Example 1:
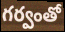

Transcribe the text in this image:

గర్వంతో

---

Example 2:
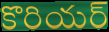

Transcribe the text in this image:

కొరియర్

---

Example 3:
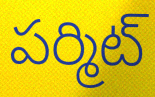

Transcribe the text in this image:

పర్మిట్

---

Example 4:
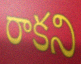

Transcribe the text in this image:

రాకని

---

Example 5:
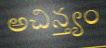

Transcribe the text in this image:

అచిన్త్యం